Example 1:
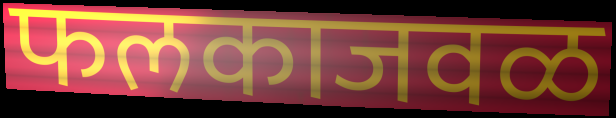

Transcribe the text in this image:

फलकाजवळ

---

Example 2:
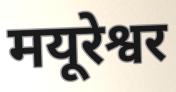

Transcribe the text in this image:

मयूरेश्वर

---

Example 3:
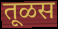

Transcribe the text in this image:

तूळस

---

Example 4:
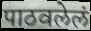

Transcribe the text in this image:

पाठवलेलं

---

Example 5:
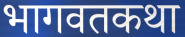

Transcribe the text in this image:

भागवतकथा